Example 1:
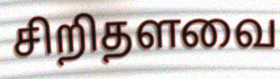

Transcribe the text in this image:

சிறிதளவை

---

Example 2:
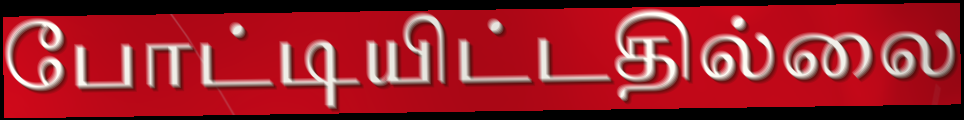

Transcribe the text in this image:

போட்டியிட்டதில்லை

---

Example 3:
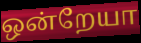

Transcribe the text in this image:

ஒன்றேயா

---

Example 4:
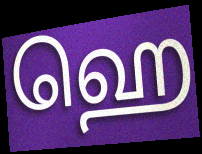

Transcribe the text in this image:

ஹெ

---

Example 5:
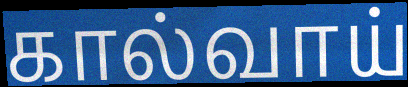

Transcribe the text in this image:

கால்வாய்